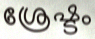
ശ്രേഷ്ടം